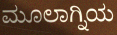
ಮೂಲಾಗ್ನಿಯ